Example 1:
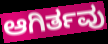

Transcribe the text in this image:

ಆಗಿರ್ತವು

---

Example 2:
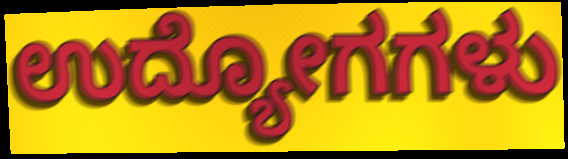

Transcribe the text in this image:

ಉದ್ಯೋಗಗಳು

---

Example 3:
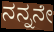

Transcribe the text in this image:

ನನ್ನನೇ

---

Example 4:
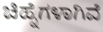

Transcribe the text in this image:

ಚಿಹ್ನೆಗಳಾಗಿವೆ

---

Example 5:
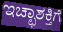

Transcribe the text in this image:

ಇಚ್ಛಾಶಕ್ತಿಗೆ